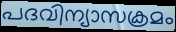
പദവിന്യാസക്രമം